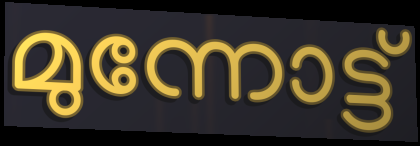
മുന്നോട്ട്